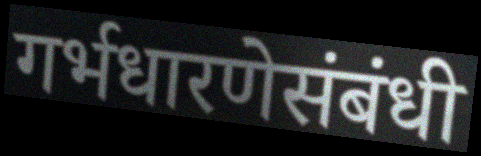
गर्भधारणेसंबंधी